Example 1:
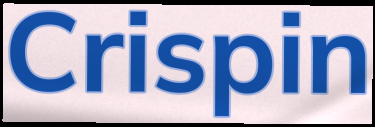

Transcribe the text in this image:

Crispin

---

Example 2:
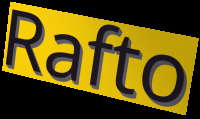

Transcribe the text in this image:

Rafto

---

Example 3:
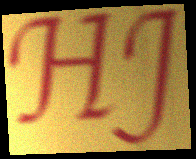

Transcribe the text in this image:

HJ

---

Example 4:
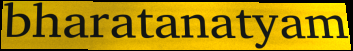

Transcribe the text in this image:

bharatanatyam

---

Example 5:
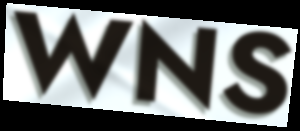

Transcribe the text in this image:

WNS